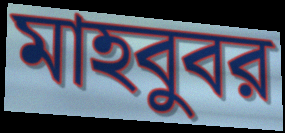
মাহবুবর